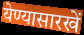
येण्यासारखें